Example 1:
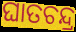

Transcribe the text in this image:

ଘାତଚନ୍ଦ୍ର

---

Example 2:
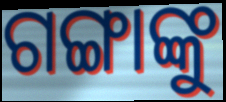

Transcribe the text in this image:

ଗଙ୍ଗାଙ୍କୁ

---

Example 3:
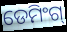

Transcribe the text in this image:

ଡେମିଂଗ୍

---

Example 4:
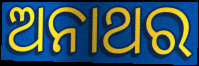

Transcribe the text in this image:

ଅନାଥର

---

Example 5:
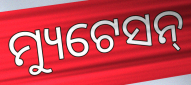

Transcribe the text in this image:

ମ୍ୟୁଟେସନ୍